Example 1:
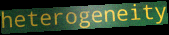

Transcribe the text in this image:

heterogeneity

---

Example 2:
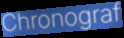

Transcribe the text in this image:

Chronograf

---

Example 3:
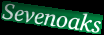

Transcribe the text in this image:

Sevenoaks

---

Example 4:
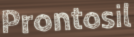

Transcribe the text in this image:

Prontosil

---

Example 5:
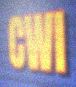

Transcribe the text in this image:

CWI